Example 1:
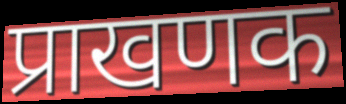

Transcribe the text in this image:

प्राखणक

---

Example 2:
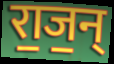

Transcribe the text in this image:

रा॒ज॒न्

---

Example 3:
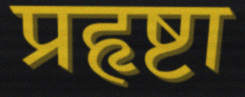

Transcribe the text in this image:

प्रहृष्टा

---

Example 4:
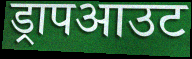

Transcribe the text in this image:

ड्रापआउट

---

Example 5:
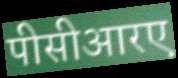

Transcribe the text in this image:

पीसीआरए